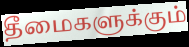
தீமைகளுக்கும்